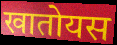
खातोयस